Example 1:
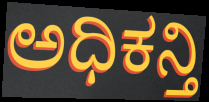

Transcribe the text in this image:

ಅಧಿಕನ್ತಿ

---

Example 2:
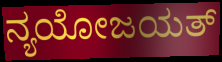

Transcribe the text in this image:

ನ್ಯಯೋಜಯತ್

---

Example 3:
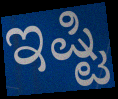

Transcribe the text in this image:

ಇಷ್ಟಿ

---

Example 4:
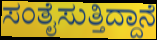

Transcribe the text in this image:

ಸಂತೈಸುತ್ತಿದ್ದಾನೆ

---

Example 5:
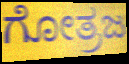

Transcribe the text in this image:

ಗೋತ್ರಜ